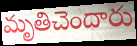
మృతిచెందారు